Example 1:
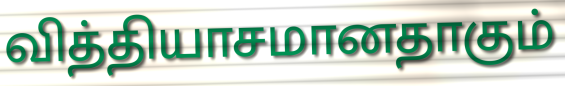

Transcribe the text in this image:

வித்தியாசமானதாகும்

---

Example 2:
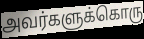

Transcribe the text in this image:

அவர்களுக்கொரு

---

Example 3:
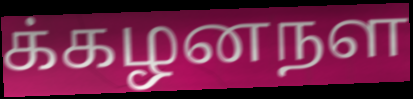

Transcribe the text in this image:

க்கழனநள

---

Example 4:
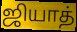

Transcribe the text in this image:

ஜியாத்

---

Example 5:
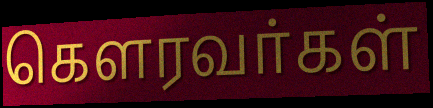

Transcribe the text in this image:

கெளரவர்கள்